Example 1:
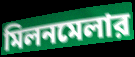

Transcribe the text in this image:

মিলনমেলার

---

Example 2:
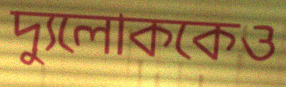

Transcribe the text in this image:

দ্যুলোককেও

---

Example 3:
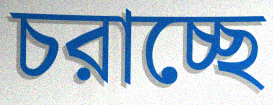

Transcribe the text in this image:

চরাচ্ছে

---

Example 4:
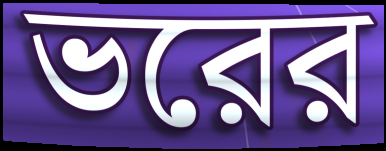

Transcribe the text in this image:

ভরের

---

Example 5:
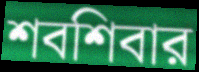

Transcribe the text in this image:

শবশিবার